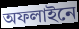
অফলাইনে